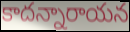
కాదన్నారాయన